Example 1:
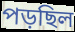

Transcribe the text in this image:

পড়ছিল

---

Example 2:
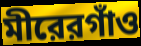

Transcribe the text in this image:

মীরেরগাঁও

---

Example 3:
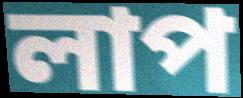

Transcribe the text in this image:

লাপ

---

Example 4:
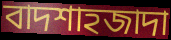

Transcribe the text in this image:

বাদশাহজাদা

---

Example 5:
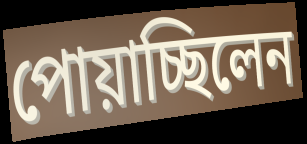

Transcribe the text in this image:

পোয়াচ্ছিলেন